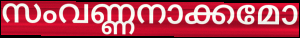
സംവണ്ണനാക്കമോ